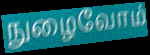
நுழைவோம்